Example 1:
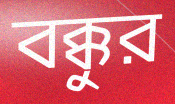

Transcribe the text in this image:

বক্কুর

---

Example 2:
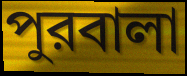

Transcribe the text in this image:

পুরবালা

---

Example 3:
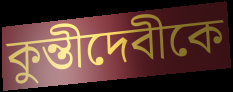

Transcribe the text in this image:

কুন্তীদেবীকে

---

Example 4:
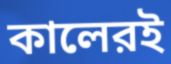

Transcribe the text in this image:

কালেরই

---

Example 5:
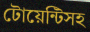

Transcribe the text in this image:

টোয়েন্টিসহ